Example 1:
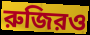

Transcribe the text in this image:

রুজিরও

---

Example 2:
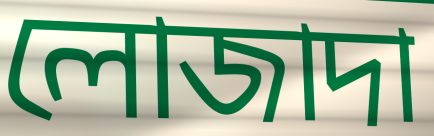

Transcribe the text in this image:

লোজাদা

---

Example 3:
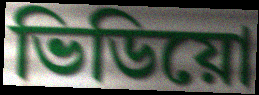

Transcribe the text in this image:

ভিডিয়ো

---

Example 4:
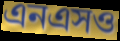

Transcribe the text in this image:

এনএসও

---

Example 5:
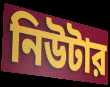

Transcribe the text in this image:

নিউটার